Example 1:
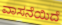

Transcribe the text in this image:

ವಾಸನೆಯಿದೆ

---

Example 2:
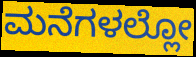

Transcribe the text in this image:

ಮನೆಗಳಲ್ಲೋ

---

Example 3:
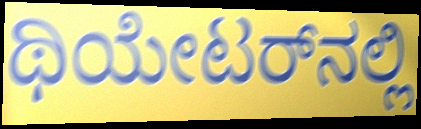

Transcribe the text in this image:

ಥಿಯೇಟರ್‌ನಲ್ಲಿ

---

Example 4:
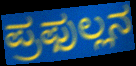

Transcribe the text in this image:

ಪ್ರಫುಲ್ಲನ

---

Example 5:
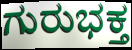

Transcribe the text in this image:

ಗುರುಭಕ್ತ